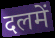
दलमें